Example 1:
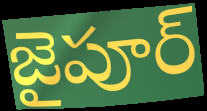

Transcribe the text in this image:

జైపూర్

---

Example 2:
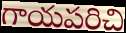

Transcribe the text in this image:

గాయపరిచి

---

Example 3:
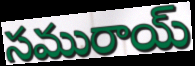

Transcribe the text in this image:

సమురాయ్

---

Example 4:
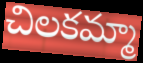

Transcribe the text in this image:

చిలకమ్మా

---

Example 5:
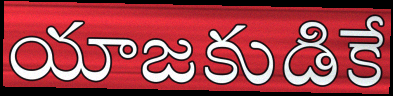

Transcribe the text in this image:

యాజకుడికే